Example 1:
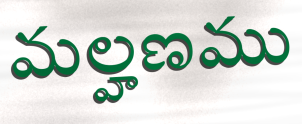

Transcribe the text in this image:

మల్హణము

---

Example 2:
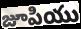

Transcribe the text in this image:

జూపియు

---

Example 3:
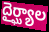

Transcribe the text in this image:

దైర్ఘ్యాల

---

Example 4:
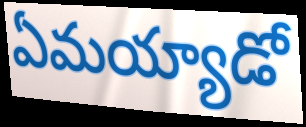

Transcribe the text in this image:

ఏమయ్యాడో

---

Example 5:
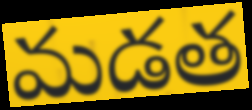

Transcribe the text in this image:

మడత